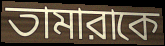
তামারাকে